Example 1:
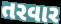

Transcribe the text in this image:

તરવાર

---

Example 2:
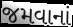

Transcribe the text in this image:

જમવાનાં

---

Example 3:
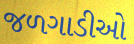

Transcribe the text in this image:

જળગાડીઓ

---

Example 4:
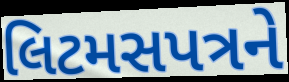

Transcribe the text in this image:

લિટમસપત્રને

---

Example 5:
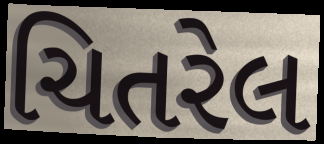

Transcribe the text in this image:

ચિતરેલ